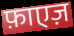
फ़ाएज़